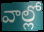
వాల్లో